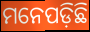
ମନେପଡ଼ିଛି